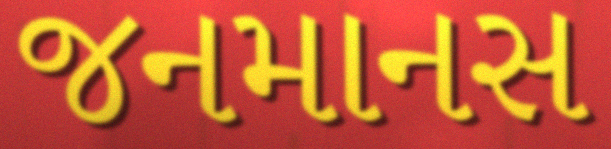
જનમાનસ